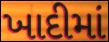
ખાદીમાં